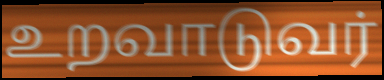
உறவாடுவர்